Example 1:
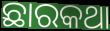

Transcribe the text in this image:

ଛାରକଥା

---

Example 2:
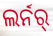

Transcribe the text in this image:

ଲର୍ନର୍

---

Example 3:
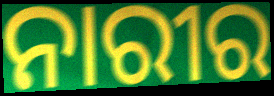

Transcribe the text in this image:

ନାରୀର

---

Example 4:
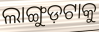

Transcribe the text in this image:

ଲାଙ୍ଗୁଡ଼ଟାକୁ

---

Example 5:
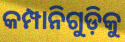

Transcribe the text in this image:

କମ୍ପାନିଗୁଡ଼ିକୁ